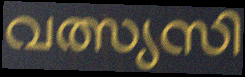
വത്സ്യസി